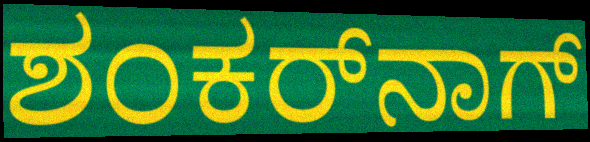
ಶಂಕರ್‌ನಾಗ್